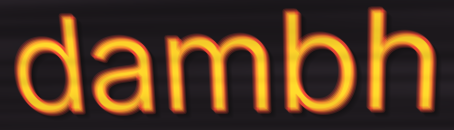
dambh